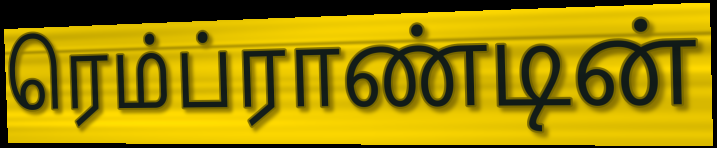
ரெம்ப்ராண்டின்